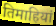
तिमाहियां